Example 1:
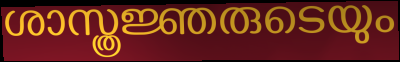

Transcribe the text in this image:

ശാസ്ത്രജ്ഞരുടെയും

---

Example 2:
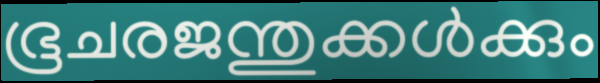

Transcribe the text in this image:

ഭൂചരജന്തുക്കൾക്കും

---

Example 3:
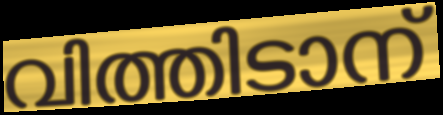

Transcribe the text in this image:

വിത്തിടാന്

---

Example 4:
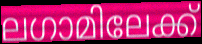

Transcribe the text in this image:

ലഗാമിലേക്ക്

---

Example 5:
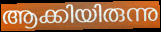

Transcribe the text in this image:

ആക്കിയിരുന്നു